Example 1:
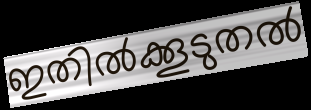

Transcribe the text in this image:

ഇതിൽക്കൂടുതൽ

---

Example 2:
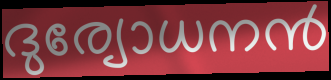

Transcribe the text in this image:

ദുര്യോധനൻ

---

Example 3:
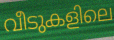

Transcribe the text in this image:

വീടുകളിലെ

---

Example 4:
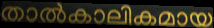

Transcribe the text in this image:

താൽകാലികമായ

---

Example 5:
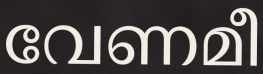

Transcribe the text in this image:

വേണമീ